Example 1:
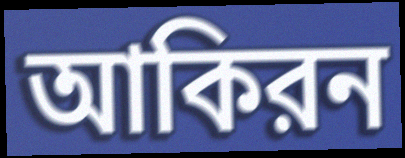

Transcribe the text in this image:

আকিরন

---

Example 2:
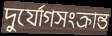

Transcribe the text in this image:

দুর্যোগসংক্রান্ত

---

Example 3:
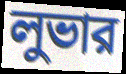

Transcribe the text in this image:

লুভার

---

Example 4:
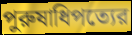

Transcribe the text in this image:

পুরুষাধিপত্যের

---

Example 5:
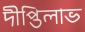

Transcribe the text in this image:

দীপ্তিলাভ